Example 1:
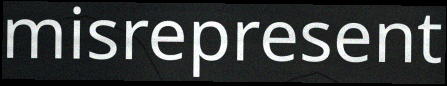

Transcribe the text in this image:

misrepresent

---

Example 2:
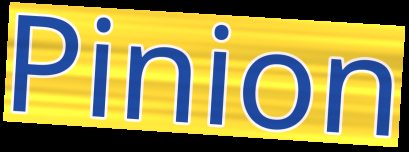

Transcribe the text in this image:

Pinion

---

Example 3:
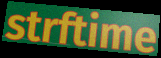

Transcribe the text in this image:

strftime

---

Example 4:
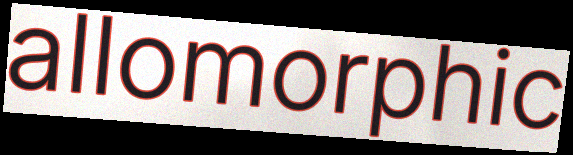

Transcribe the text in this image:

allomorphic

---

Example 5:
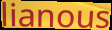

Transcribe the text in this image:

lianous